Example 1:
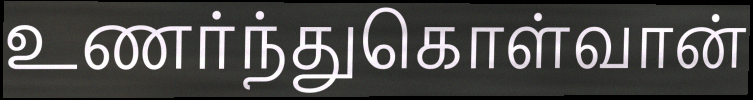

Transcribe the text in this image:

உணர்ந்துகொள்வான்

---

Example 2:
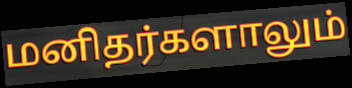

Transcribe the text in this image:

மனிதர்களாலும்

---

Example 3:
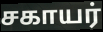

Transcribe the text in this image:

சகாயர்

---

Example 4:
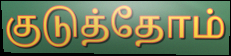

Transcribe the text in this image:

குடுத்தோம்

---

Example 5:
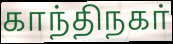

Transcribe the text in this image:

காந்திநகர்